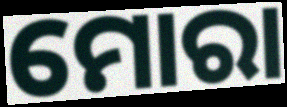
ମୋରା